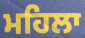
ਮਹਿਲਾ